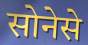
सोनेसे